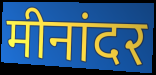
मीनांदर